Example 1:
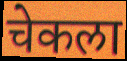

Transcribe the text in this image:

चेकला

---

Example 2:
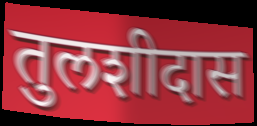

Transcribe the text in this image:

तुलशीदास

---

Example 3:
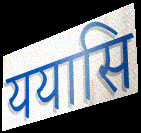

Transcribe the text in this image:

ययासि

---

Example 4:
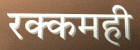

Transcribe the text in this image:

रक्कमही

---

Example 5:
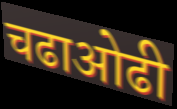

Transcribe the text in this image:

चढाओढी